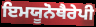
ਇਮਯੂਨੋਥੈਰੇਪੀ